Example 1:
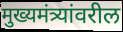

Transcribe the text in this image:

मुख्यमंत्र्यांवरील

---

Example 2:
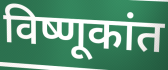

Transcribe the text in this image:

विष्णूकांत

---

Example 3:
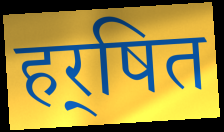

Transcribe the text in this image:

हर्षित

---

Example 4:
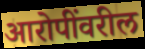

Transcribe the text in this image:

आरोपींवरील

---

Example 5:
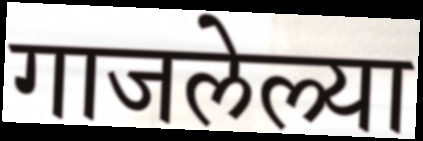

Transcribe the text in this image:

गाजलेल्या